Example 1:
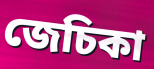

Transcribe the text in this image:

জেচিকা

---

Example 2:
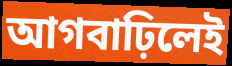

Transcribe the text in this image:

আগবাঢ়িলেই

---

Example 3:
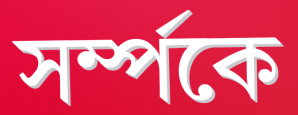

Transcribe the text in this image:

সৰ্ম্পকে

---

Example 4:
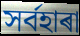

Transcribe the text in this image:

সৰ্বহাৰা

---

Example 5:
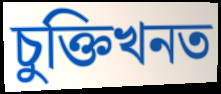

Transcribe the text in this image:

চুক্তিখনত